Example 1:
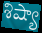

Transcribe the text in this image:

శిష్యా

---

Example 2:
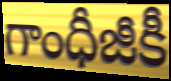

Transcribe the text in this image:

గాంధీజీకీ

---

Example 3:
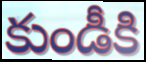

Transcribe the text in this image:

కుండీకి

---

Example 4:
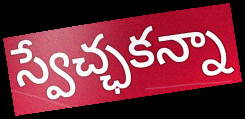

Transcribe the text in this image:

స్వేచ్ఛకన్నా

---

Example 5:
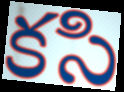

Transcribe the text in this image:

కసి